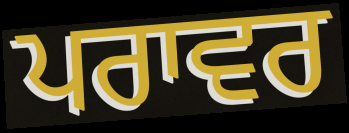
ਪਰਾਵਰ